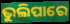
ଭୁଲିପାରେ